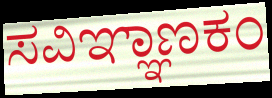
ಸವಿಞ್ಞಾಣಕಂ